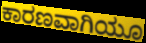
ಕಾರಣವಾಗಿಯೂ